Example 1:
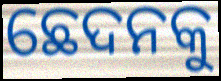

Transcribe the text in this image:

ଛେଦନକୁ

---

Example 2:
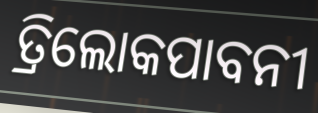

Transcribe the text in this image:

ତ୍ରିଲୋକପାବନୀ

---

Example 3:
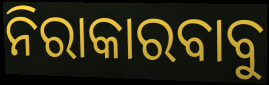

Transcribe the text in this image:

ନିରାକାରବାବୁ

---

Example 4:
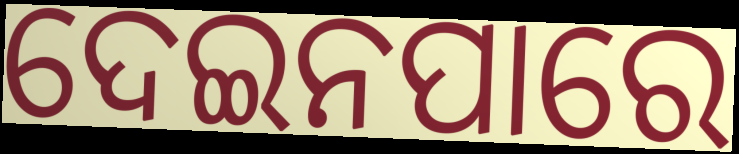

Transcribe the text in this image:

ଦେଇନପାରେ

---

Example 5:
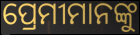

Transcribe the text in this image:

ପ୍ରେମୀମାନଙ୍କୁ